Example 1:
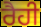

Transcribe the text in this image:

ਰੈਹੀ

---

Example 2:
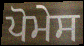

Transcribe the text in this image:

ਪੋਮੇਸ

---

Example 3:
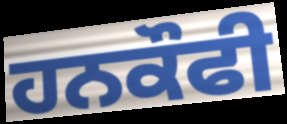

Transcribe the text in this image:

ਹਨਕੌਫੀ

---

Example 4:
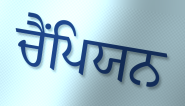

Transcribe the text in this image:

ਚੈੰਪਿਯਨ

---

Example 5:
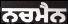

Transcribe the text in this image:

ਨਚਮੈਨ